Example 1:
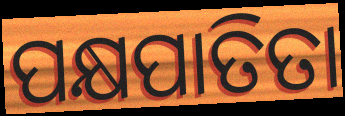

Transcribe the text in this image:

ପକ୍ଷପାତିତା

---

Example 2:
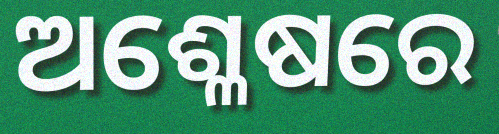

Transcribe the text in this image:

ଅଶ୍ଳେଷରେ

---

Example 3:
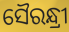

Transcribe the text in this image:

ସୈରନ୍ଧ୍ରୀ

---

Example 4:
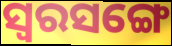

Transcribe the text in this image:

ସ୍ୱରସଙ୍ଗେ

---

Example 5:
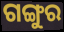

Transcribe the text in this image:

ଗଙ୍ଗୁର